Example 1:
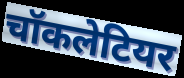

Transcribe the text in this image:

चॉकलेटियर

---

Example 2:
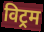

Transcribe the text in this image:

विट्रम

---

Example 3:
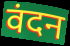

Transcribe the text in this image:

वंदन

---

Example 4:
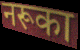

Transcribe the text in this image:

नरूका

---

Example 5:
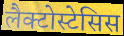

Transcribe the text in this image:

लैक्टोस्टेसिस